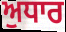
ਅੁਧਾਰ